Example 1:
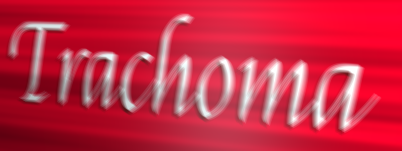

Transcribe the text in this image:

Trachoma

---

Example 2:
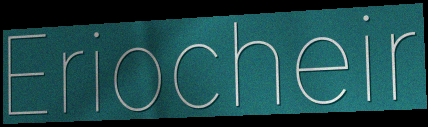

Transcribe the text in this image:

Eriocheir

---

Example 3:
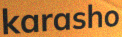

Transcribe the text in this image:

karasho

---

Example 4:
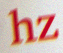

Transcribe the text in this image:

hz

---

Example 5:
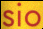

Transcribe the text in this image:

sio